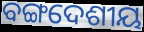
ବଙ୍ଗଦେଶୀୟ